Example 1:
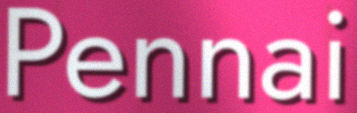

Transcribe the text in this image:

Pennai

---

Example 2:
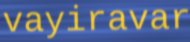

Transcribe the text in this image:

vayiravar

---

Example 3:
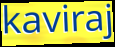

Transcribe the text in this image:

kaviraj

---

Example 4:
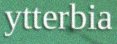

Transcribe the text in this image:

ytterbia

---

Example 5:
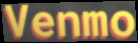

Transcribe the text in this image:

Venmo